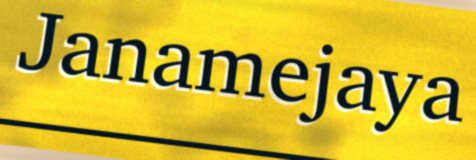
Janamejaya